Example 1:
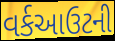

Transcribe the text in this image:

વર્કઆઉટની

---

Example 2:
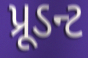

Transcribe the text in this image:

પ્રૂડન્ટ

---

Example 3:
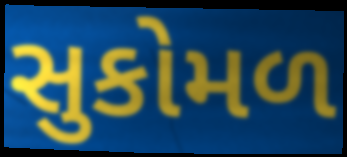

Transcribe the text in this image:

સુકોમળ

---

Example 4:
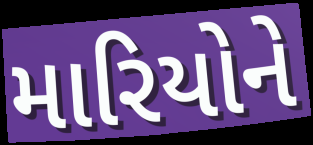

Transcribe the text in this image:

મારિયોને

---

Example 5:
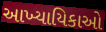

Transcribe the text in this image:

આખ્યાયિકાઓ